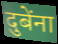
दुबेंना